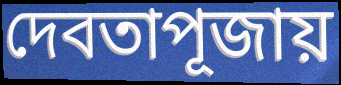
দেবতাপূজায়